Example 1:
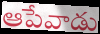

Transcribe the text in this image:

ఆపేవాడు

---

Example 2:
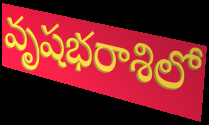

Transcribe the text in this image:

వృషభరాశిలో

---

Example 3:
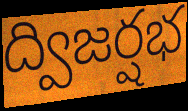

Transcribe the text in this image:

ద్విజర్షభ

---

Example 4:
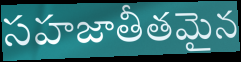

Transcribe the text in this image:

సహజాతీతమైన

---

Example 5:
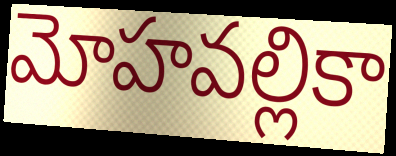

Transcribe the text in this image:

మోహవల్లికా